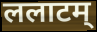
ललाटम्